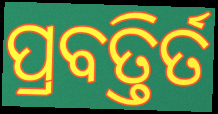
ପ୍ରବତ୍ତିର୍ତ